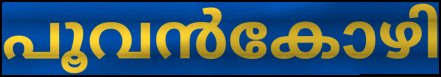
പൂവൻകോഴി